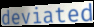
deviated